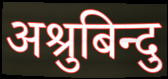
अश्रुबिन्दु